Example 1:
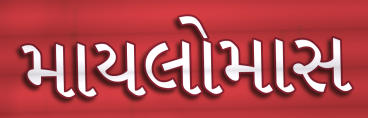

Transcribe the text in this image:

માયલોમાસ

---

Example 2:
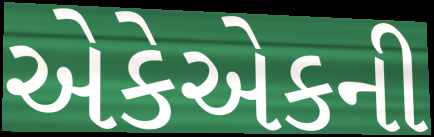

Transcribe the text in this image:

એકેએકની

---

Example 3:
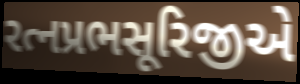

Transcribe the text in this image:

રત્નપ્રભસૂરિજીએ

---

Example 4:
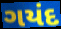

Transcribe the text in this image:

ગયંદ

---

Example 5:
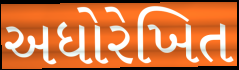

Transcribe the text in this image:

અધોરેખિત